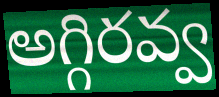
అగ్గిరవ్వ